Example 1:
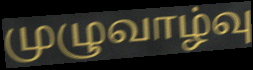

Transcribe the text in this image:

முழுவாழ்வு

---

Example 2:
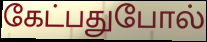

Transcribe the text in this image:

கேட்பதுபோல்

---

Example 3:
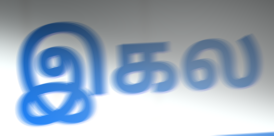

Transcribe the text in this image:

இகல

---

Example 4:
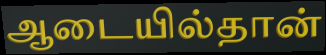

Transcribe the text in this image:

ஆடையில்தான்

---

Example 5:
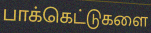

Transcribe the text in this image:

பாக்கெட்டுகளை